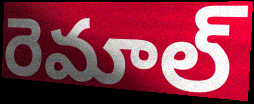
రెమాల్